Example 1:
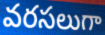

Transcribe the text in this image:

వరసలుగా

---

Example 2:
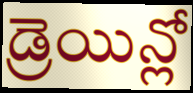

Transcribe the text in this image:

డ్రెయిన్లో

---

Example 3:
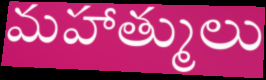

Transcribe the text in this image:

మహాత్ములు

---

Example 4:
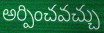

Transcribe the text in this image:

అర్పించవచ్చు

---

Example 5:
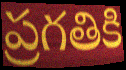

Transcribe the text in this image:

ప్రగతికి